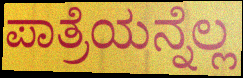
ಪಾತ್ರೆಯನ್ನೆಲ್ಲ